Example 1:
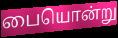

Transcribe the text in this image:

பையொன்று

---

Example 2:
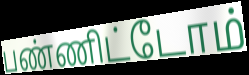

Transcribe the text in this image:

பண்ணிட்டோம்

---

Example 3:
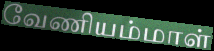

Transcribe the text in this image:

வேணியம்மாள்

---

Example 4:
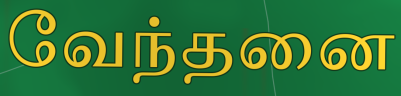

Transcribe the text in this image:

வேந்தனை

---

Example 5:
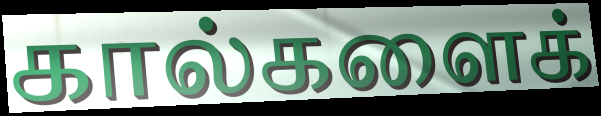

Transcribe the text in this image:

கால்களைக்